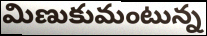
మిణుకుమంటున్న